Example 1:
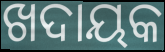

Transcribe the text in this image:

ଖଦାୟକ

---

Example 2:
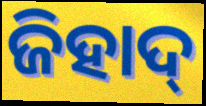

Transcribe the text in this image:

ଜିହାଦ୍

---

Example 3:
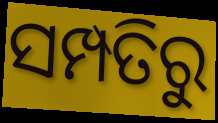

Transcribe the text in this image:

ସମ୍ପତିରୁ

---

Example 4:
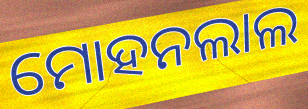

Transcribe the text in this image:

ମୋହନଲାଲ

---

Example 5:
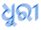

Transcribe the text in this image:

ଧୁରୀ